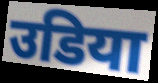
उडिया